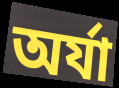
অর্যা